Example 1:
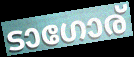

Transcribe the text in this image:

ടാഗോര്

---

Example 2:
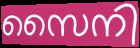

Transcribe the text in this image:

സൈനി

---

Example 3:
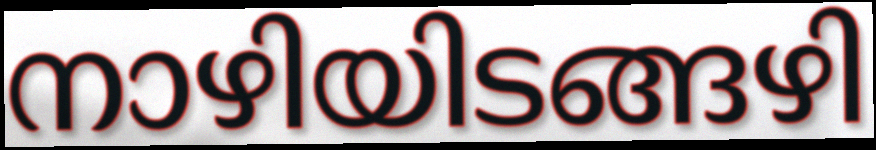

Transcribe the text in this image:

നാഴിയിടങ്ങഴി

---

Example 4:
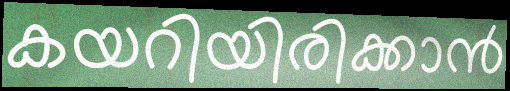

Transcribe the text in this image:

കയറിയിരിക്കാൻ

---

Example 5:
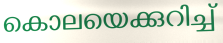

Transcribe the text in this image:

കൊലയെക്കുറിച്ച്